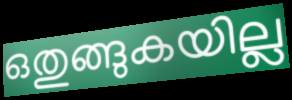
ഒതുങ്ങുകയില്ല